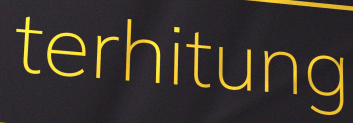
terhitung